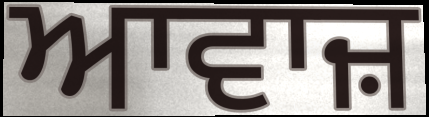
ਆਵਾਜ਼